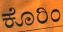
ಕೊರಿಂ